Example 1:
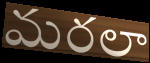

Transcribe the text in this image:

మరలా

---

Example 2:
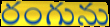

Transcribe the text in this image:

రంగును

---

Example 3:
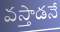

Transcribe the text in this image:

వస్తాడనే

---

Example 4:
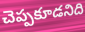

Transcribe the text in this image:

చెప్పకూడనిది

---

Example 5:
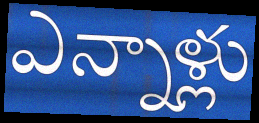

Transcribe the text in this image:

ఎన్నాళ్లు